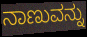
ನಾಣುವನ್ನು